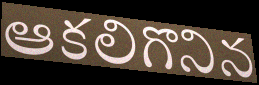
ఆకలిగొనిన